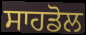
ਸਾਹਡੋਲ